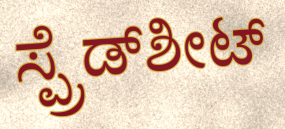
ಸ್ಪ್ರೆಡ್‌ಶೀಟ್